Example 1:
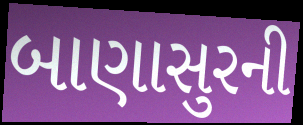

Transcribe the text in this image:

બાણાસુરની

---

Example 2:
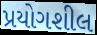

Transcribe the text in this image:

પ્રયોગશીલ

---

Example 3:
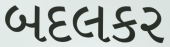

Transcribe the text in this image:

બદલકર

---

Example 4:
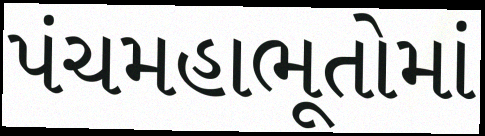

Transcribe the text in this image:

પંચમહાભૂતોમાં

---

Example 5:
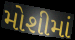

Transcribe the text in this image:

મોશીમાં